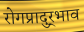
रोगप्रादुर्भाव